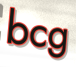
bcg